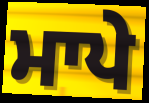
ਮਾਪੇ